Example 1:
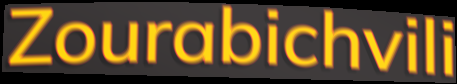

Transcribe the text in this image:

Zourabichvili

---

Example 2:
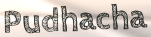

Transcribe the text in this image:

Pudhacha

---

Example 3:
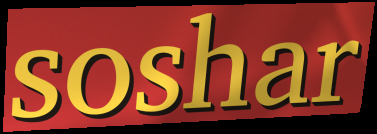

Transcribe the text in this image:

soshar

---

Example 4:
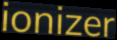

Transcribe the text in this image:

ionizer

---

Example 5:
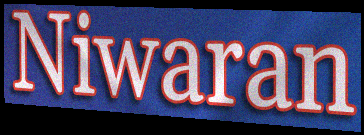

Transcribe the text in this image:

Niwaran